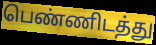
பெண்ணிடத்து